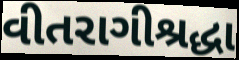
વીતરાગીશ્રદ્ધા